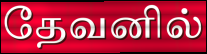
தேவனில்